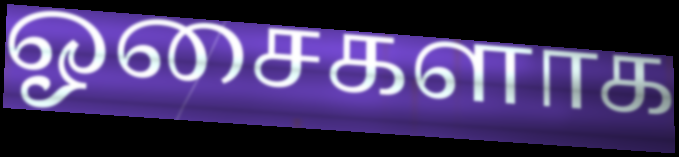
ஓசைகளாக